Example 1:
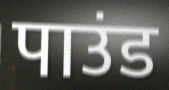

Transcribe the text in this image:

पाउंड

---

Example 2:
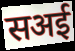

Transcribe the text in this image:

सअई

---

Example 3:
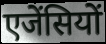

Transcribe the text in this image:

एजेंसियों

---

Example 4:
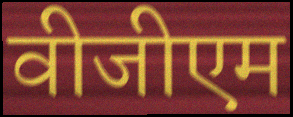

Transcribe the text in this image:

वीजीएम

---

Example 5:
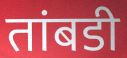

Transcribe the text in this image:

तांबडी